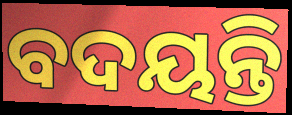
ବଦୟନ୍ତି